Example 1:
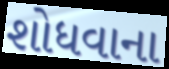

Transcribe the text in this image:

શોધવાના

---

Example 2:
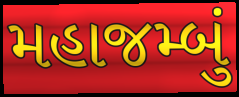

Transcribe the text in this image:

મહાજમ્બું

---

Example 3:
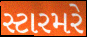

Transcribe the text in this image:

સ્ટારમરે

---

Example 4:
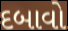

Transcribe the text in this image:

દબાવો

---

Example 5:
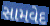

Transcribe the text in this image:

સામવેદ